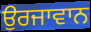
ਉਰਜਾਵਾਨ